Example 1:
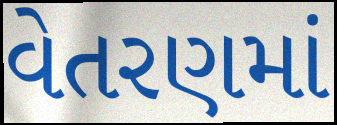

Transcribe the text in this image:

વેતરણમાં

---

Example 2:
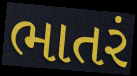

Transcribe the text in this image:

ભાતરં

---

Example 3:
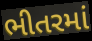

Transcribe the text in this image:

ભીતરમાં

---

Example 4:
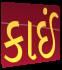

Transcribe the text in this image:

કાઈં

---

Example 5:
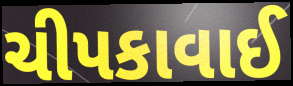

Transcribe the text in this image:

ચીપકાવાઈ